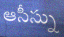
ఆసీస్ను